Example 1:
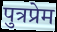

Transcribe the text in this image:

पुत्रप्रेम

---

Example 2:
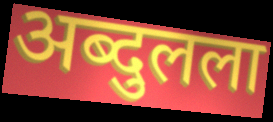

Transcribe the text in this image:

अब्दुलला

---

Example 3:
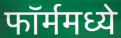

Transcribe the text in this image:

फॉर्ममध्ये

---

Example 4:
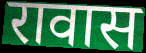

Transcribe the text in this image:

रावास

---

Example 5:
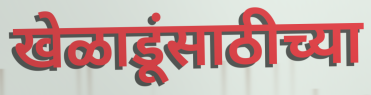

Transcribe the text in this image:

खेळाडूंसाठीच्या